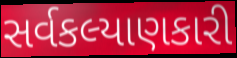
સર્વકલ્યાણકારી